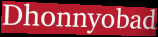
Dhonnyobad